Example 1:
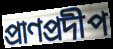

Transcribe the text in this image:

প্রাণপ্রদীপ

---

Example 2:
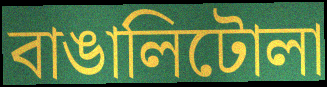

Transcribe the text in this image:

বাঙালিটোলা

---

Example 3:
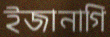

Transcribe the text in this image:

ইজানাগি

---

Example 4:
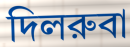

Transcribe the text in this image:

দিলরুবা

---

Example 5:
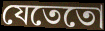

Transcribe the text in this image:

যেতেতো